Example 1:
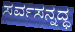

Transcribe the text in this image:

ಸರ್ವಸನ್ನದ್ಧ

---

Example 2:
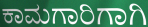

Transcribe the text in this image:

ಕಾಮಗಾರಿಗಾಗಿ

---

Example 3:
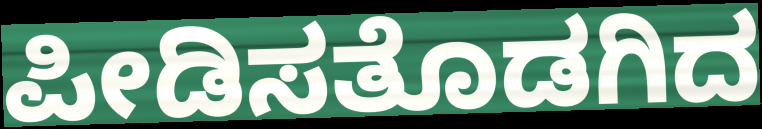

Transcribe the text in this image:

ಪೀಡಿಸತೊಡಗಿದ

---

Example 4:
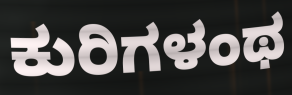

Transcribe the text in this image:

ಕುರಿಗಳಂಥ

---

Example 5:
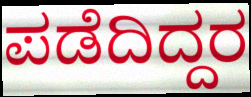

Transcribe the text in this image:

ಪಡೆದಿದ್ದರ